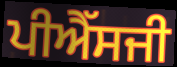
ਪੀਐੱਸਜੀ